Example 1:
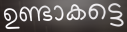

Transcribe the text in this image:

ഉണ്ടാകട്ടെ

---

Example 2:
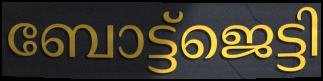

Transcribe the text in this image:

ബോട്ട്ജെട്ടി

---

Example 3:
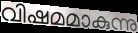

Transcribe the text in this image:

വിഷമമാകുന്നു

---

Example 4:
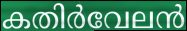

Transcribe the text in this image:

കതിർവേലൻ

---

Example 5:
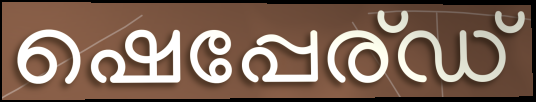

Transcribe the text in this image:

ഷെപ്പേര്ഡ്